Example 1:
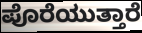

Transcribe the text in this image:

ಪೊರೆಯುತ್ತಾರೆ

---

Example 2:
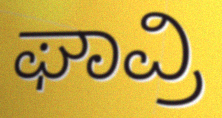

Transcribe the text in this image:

ಘಾವ್ರಿ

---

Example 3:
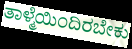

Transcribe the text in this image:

ತಾಳ್ಮೆಯಿಂದಿರಬೇಕು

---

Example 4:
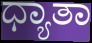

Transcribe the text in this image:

ಧ್ಯಾತಾ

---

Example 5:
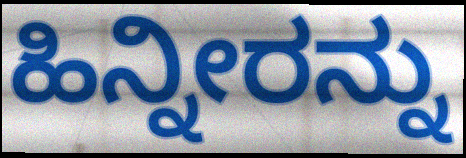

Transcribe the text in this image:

ಹಿನ್ನೀರನ್ನು